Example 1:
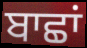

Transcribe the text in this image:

ਬਾਛਾਂ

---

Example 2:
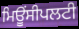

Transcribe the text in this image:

ਮਿਊਂਸੀਪਲਟੀ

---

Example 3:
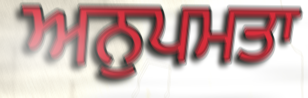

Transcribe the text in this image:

ਅਨੁਪਮਤਾ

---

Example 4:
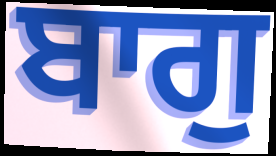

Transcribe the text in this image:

ਬਾਗੁ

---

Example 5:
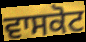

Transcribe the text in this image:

ਵਾਸਕੋਟ